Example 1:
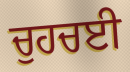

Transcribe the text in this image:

ਚੁਹਚਈ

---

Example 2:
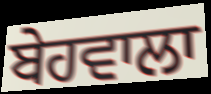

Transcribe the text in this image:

ਬੇਹਵਾਲਾ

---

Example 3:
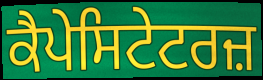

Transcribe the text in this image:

ਕੈਪੇਸਿਟੇਟਰਜ਼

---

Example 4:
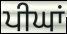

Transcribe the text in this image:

ਪੀਘਾਂ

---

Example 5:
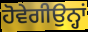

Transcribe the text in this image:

ਹੋਵੇਗੀਉਨ੍ਹਾਂ